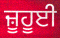
ਜ਼ੂਹੂਈ